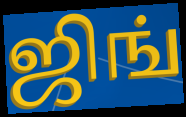
ஜிங்